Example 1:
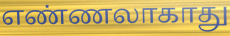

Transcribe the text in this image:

எண்ணலாகாது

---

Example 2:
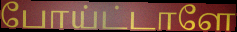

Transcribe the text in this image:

போய்ட்டாளே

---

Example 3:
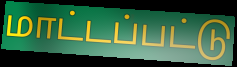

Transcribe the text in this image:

மாட்டப்பட்டு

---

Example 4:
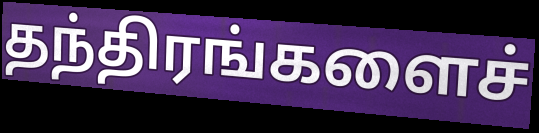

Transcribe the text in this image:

தந்திரங்களைச்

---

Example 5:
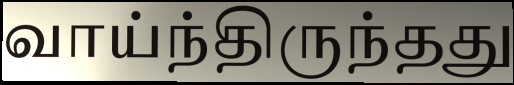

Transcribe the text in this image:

வாய்ந்திருந்தது